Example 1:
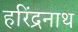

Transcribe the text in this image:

हरिंद्रनाथ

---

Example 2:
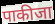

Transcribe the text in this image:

पाकीजा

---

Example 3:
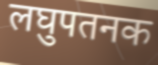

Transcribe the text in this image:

लघुपतनक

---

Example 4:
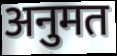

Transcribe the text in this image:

अनुमत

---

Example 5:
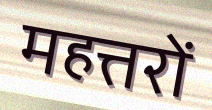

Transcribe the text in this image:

महत्तरों